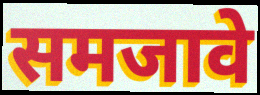
समजावे